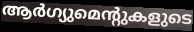
ആർഗ്യുമെന്റുകളുടെ